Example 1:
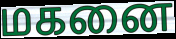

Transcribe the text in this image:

மகனை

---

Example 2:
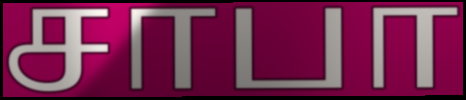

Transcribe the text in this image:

சாபா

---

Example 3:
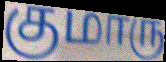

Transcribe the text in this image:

குமாரு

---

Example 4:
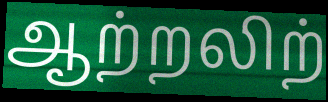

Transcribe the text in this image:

ஆற்றலிற்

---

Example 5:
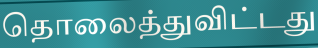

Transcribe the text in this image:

தொலைத்துவிட்டது